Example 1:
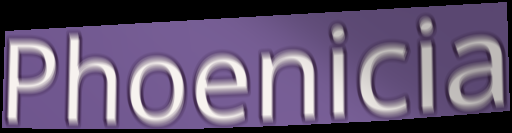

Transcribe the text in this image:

Phoenicia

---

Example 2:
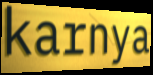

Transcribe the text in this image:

karnya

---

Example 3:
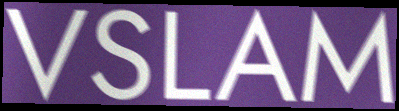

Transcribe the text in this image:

VSLAM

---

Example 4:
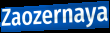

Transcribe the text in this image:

Zaozernaya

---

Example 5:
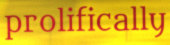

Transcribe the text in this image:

prolifically